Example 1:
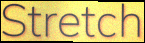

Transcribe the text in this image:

Stretch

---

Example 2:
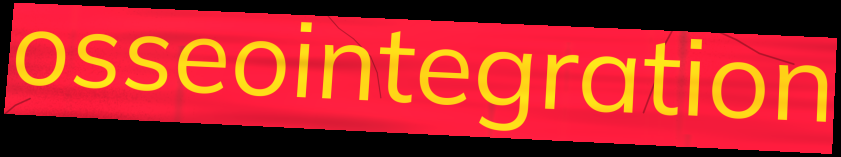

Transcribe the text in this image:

osseointegration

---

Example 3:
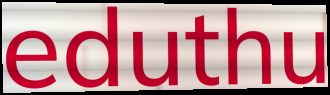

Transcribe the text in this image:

eduthu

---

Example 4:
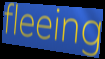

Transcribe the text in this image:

fleeing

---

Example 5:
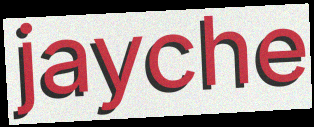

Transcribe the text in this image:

jayche